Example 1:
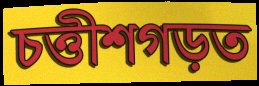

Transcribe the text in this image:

চত্তীশগড়ত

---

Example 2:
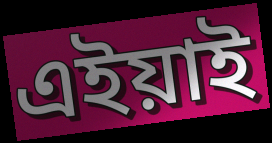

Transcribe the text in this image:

এইয়াই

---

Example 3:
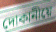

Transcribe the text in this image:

দোকানীয়ে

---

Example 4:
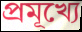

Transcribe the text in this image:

প্ৰমূখ্যে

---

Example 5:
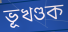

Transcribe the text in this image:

ভূখণ্ডক